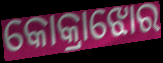
କୋକ୍ରାଝୋର